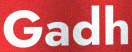
Gadh